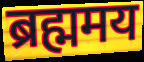
ब्रह्ममय